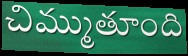
చిమ్ముతూంది